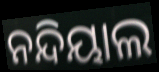
ନନ୍ଦିୟାଲ